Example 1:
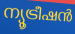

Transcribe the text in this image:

ന്യൂട്രീഷൻ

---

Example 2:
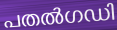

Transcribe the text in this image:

പതൽഗഡി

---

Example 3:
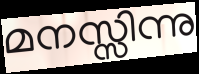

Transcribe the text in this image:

മനസ്സിന്നു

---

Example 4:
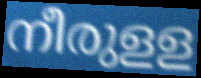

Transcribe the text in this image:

നീരുളള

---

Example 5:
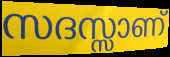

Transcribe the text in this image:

സദസ്സാണ്